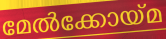
മേൽക്കോയ്മ